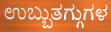
ಉಬ್ಬುತಗ್ಗುಗಳ